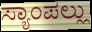
ಸ್ಯಾಂಪಲ್ಲು